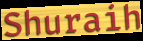
Shuraih